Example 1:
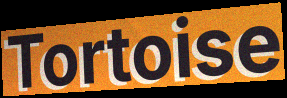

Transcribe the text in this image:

Tortoise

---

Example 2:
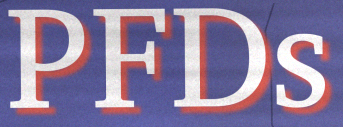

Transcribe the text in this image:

PFDs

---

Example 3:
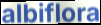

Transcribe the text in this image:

albiflora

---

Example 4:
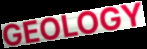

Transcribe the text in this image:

GEOLOGY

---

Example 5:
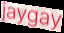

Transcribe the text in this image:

jaygay